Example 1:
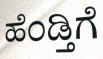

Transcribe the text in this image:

ಹೆಂಡ್ತಿಗೆ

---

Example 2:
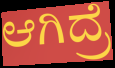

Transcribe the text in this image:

ಆಗಿದ್ರೆ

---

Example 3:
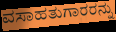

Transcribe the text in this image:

ವಸಾಹತುಗಾರರನ್ನು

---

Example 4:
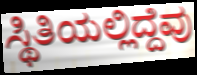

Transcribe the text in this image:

ಸ್ಥಿತಿಯಲ್ಲಿದ್ದೆವು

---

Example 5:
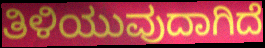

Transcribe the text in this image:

ತಿಳಿಯುವುದಾಗಿದೆ